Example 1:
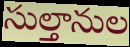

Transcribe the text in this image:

సుల్తానుల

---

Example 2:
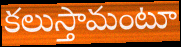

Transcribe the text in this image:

కలుస్తామంటూ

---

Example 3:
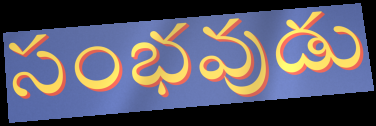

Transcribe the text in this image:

సంభవుడు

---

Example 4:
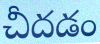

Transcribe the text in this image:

చీదడం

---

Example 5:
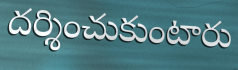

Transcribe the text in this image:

దర్శించుకుంటారు